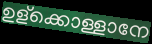
ഉള്ക്കൊള്ളാനേ